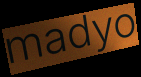
madyo